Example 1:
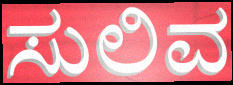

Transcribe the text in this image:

ಸುಲಿವ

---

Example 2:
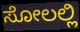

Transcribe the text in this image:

ಸೋಲಲ್ಲಿ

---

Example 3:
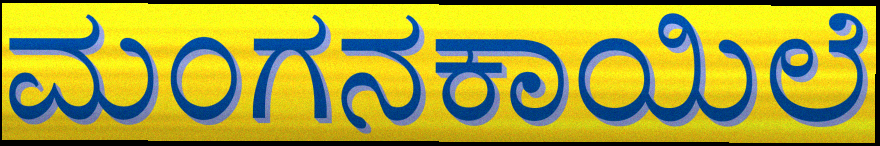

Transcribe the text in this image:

ಮಂಗನಕಾಯಿಲೆ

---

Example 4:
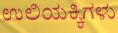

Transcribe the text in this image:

ಉಲಿಯಕ್ಕಿಗಳು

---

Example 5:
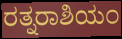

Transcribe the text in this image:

ರತ್ನರಾಶಿಯಂ